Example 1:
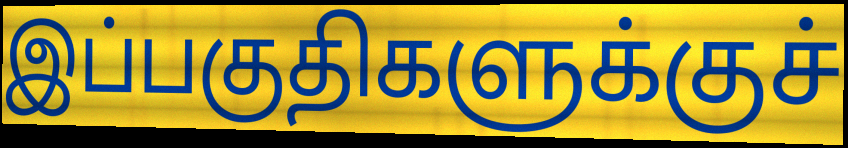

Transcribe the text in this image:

இப்பகுதிகளுக்குச்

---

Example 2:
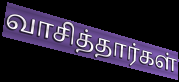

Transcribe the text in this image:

வாசித்தார்கள்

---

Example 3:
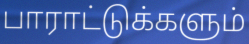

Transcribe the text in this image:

பாராட்டுக்களும்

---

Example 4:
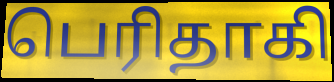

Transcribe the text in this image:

பெரிதாகி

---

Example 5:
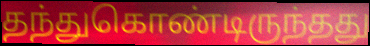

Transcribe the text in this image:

தந்துகொண்டிருந்தது